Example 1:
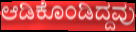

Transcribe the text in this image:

ಆಡಿಕೊಂಡಿದ್ದವು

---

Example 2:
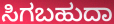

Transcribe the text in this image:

ಸಿಗಬಹುದಾ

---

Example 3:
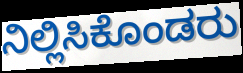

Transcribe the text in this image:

ನಿಲ್ಲಿಸಿಕೊಂಡರು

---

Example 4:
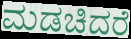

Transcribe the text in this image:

ಮಡಚಿದರೆ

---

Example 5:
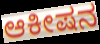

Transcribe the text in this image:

ಆಕೀಷನ